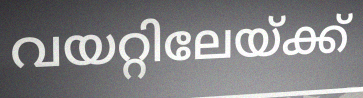
വയറ്റിലേയ്ക്ക്